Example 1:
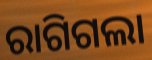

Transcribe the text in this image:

ରାଗିଗଲା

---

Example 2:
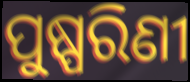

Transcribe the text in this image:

ପୁଷ୍ପରିଣୀ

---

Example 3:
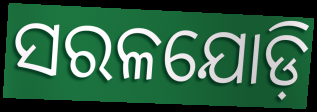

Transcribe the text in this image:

ସରଳଯୋଡ଼ି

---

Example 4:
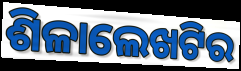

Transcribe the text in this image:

ଶିଳାଲେଖଟିର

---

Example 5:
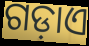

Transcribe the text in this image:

ଗଡ଼ାଏ